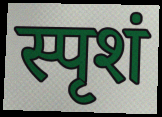
स्पृशं